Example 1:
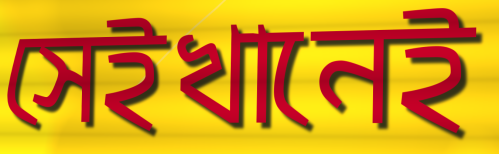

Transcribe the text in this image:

সেইখানেই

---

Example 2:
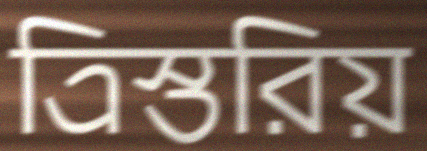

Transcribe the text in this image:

ত্রিস্তরিয়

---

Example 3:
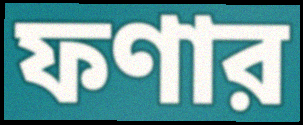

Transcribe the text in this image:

ফণার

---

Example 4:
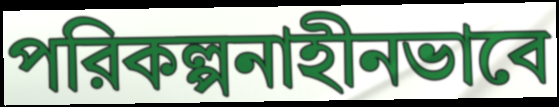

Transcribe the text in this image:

পরিকল্পনাহীনভাবে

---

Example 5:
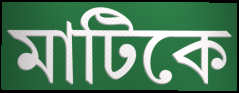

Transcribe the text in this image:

মাটিকে